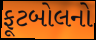
ફૂટબોલનો